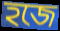
হজে